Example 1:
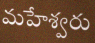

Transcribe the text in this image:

మహేశ్వరు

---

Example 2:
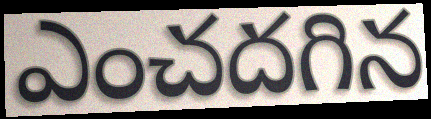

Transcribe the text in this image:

ఎంచదగిన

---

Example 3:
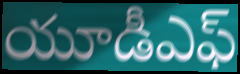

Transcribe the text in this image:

యూడీఎఫ్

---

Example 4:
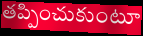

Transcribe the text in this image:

తప్పించుకుంటూ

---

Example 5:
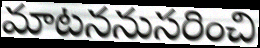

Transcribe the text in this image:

మాటననుసరించి